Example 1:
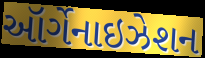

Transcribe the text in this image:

ઑર્ગેનાઇઝેશન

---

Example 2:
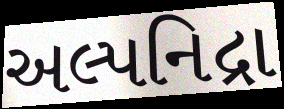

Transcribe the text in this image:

અલ્પનિદ્રા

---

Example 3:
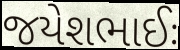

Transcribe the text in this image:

જયેશભાઈઃ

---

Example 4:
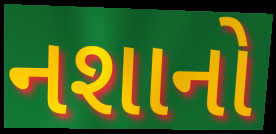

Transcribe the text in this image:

નશાનો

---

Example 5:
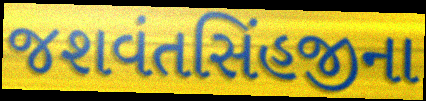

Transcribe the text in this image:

જશવંતસિંહજીના